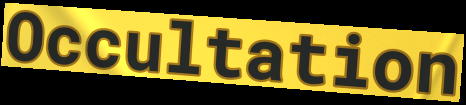
Occultation